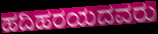
ಹದಿಹರಯದವರು